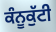
ਕੰਨੂਕੁੱਟੀ